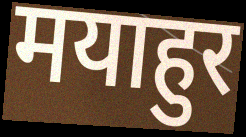
मयाहुर